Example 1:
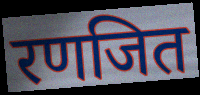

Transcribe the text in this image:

रणजित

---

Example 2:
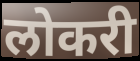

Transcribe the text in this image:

लोकरी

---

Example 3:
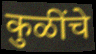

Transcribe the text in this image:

कुळींचे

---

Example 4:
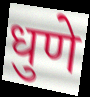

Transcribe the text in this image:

धुणे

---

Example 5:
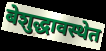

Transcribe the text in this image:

बेशुद्धावस्थेत